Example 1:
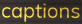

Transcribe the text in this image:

captions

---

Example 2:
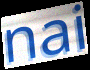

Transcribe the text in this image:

nai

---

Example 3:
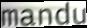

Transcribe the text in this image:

mandu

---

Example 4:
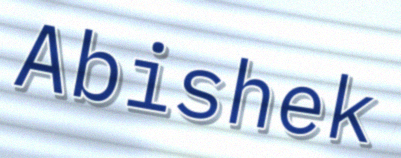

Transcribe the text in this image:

Abishek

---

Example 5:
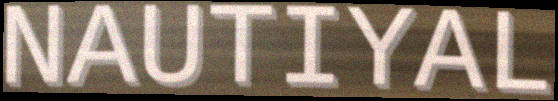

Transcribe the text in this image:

NAUTIYAL